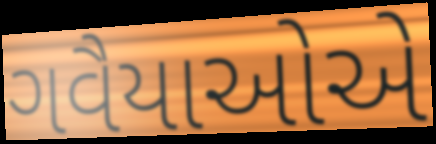
ગવૈયાઓએ